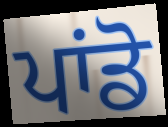
ਪਾਂਡੋ